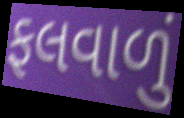
ફલવાળું